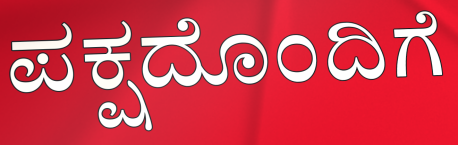
ಪಕ್ಷದೊಂದಿಗೆ